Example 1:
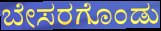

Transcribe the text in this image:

ಬೇಸರಗೊಂಡು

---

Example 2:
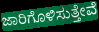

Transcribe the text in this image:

ಜಾರಿಗೊಳಿಸುತ್ತೇವೆ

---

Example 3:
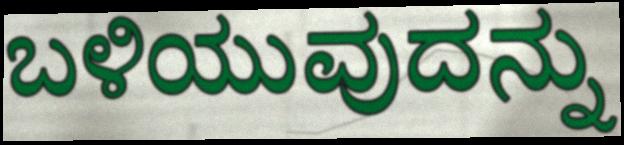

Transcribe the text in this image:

ಬಳಿಯುವುದನ್ನು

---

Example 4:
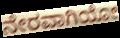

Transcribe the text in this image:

ನೇರವಾಗಿಯೋ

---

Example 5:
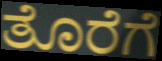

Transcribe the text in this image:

ತೊರೆಗೆ